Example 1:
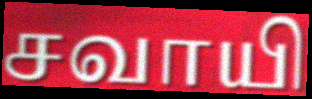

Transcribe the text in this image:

சவாயி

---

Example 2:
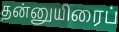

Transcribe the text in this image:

தன்னுயிரைப்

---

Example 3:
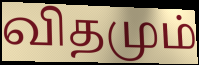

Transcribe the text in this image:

விதமும்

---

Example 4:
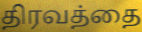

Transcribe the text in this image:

திரவத்தை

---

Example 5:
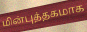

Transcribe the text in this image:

மின்புத்தகமாக